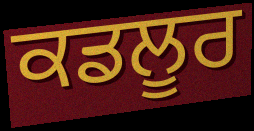
ਕਡਲੂਰ